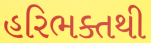
હરિભક્તથી